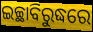
ଇଚ୍ଛାବିରୁଦ୍ଧରେ